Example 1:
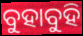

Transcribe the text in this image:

ବୁହାବୁହି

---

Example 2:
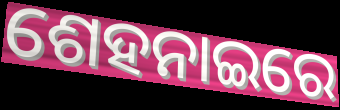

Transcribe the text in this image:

ଶେହନାଇରେ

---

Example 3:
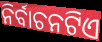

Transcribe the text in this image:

ନିର୍ବାଚନଟିଏ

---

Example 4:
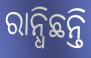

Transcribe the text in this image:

ରାନ୍ଧିଛନ୍ତି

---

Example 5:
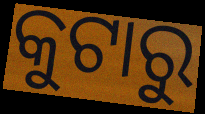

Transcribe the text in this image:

କୁଟାରୁ